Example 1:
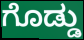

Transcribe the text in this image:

ಗೊಡ್ಡು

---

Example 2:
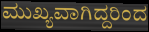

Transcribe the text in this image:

ಮುಖ್ಯವಾಗಿದ್ದರಿಂದ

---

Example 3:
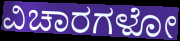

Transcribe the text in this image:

ವಿಚಾರಗಳೋ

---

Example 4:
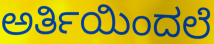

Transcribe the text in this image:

ಅರ್ತಿಯಿಂದಲೆ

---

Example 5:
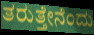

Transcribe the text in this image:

ತರುತ್ತೇನೆಂದು